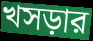
খসড়ার